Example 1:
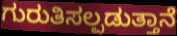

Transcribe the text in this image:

ಗುರುತಿಸಲ್ಪಡುತ್ತಾನೆ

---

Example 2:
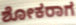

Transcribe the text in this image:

ಶೋಕರಾಗ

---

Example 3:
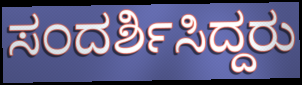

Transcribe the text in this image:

ಸಂದರ್ಶಿಸಿದ್ದರು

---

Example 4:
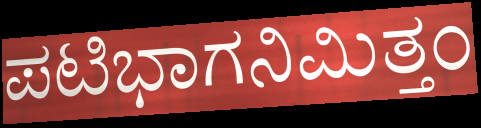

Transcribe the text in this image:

ಪಟಿಭಾಗನಿಮಿತ್ತಂ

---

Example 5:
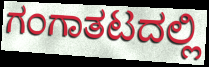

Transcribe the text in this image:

ಗಂಗಾತಟದಲ್ಲಿ